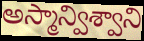
అస్మాన్విశ్వాని